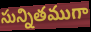
సున్నితముగా